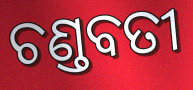
ଚଣ୍ଡବତୀ